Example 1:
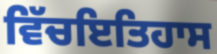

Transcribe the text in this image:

ਵਿੱਚਇਤਿਹਾਸ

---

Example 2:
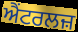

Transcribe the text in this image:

ਐਂਟਰਲਜ਼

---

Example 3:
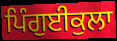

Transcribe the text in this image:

ਪਿੰਗੁਈਕੁਲਾ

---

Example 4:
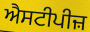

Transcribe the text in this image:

ਐਸਟੀਪੀਜ਼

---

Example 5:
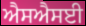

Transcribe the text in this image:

ਐਸਐਸਈ